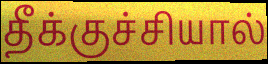
தீக்குச்சியால்